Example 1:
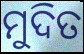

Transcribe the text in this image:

ମୁଦିତ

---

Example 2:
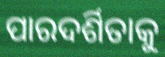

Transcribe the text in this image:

ପାରଦର୍ଶିତାକୁ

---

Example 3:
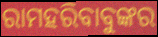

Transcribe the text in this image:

ରାମହରିବାବୁଙ୍କର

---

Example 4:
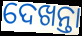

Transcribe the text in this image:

ଦେଖନ୍ତା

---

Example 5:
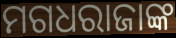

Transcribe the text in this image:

ମଗଧରାଜାଙ୍କ